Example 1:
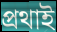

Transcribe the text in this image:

প্রথাই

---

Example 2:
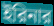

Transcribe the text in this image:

ইরিনার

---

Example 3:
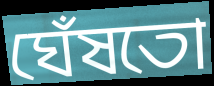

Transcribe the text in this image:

ঘেঁষতো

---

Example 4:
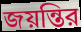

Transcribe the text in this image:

জয়ন্তির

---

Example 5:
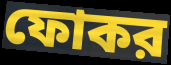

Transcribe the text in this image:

ফোকর